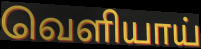
வெளியாய்